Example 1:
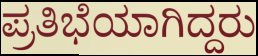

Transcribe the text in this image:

ಪ್ರತಿಭೆಯಾಗಿದ್ದರು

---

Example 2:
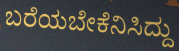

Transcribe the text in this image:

ಬರೆಯಬೇಕೆನಿಸಿದ್ದು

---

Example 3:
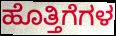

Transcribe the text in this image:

ಹೊತ್ತಿಗೆಗಳ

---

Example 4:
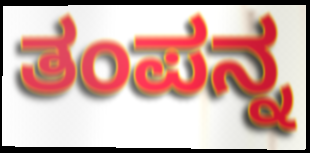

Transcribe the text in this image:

ತಂಪನ್ನ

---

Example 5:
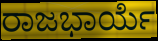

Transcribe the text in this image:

ರಾಜಭಾರ್ಯೆ